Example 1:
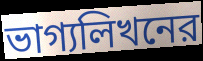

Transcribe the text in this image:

ভাগ্যলিখনের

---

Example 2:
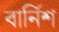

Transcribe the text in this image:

বার্নিশ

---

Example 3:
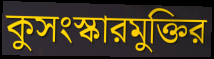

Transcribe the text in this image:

কুসংস্কারমুক্তির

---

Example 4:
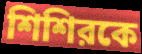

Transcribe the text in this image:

শিশিরকে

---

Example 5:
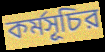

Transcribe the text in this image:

কর্মসূচির